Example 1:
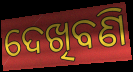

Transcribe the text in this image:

ଦେଖିବଣି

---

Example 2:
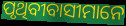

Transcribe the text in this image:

ପୃଥିବୀବାସୀମାନେ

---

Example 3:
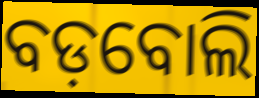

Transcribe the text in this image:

ବଡ଼ବୋଲି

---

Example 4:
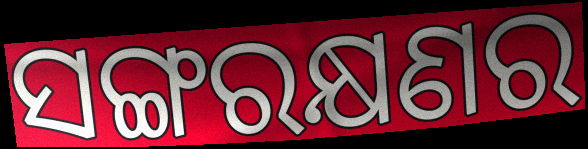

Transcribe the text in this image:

ସଙ୍ଗରକ୍ଷଣର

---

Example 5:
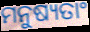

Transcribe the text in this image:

ମନୁଷ୍ୟତାଂ